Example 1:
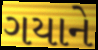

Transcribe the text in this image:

ગયાને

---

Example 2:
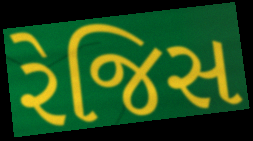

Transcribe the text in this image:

રેજિસ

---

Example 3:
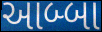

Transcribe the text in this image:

આબ્બા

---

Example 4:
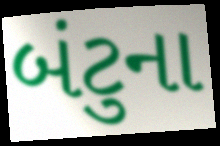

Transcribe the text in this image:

બંટુના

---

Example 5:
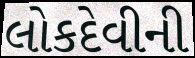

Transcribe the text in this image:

લોકદેવીની